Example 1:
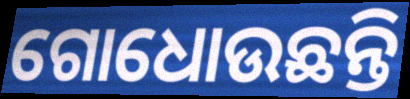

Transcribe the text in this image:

ଗୋଧୋଉଛନ୍ତି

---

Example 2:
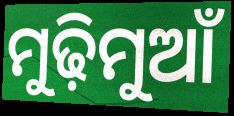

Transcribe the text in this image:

ମୁଢ଼ିମୁଆଁ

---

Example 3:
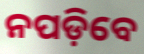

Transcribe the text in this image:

ନପଡ଼ିବେ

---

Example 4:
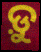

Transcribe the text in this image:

ଡ଼ୁ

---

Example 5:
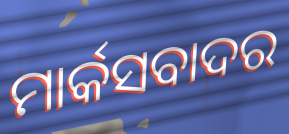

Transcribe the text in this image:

ମାର୍କସବାଦର